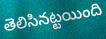
తెలిసినట్టయింది